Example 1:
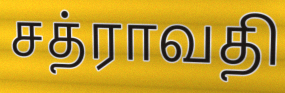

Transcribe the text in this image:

சத்ராவதி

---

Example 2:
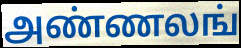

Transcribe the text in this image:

அண்ணலங்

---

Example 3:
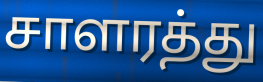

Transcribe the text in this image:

சாளரத்து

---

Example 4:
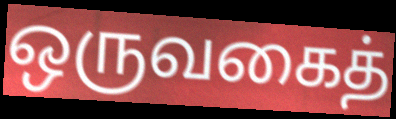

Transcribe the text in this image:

ஒருவகைத்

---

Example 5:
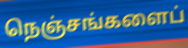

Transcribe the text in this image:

நெஞ்சங்களைப்